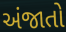
અંજાતો